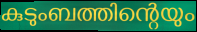
കുടുംബത്തിന്റെയും